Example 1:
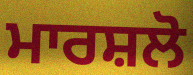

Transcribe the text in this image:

ਮਾਰਸ਼ਲੋ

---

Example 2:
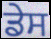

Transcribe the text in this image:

ਡੇਸ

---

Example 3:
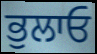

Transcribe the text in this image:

ਭੁਲਾਓ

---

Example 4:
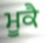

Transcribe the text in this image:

ਮੂਕੈ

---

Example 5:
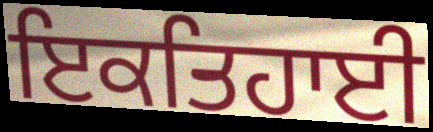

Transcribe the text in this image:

ਇਕਤਿਹਾਈ